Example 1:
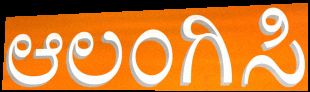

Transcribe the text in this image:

ಆಲಂಗಿಸಿ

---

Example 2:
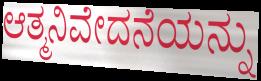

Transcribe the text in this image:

ಆತ್ಮನಿವೇದನೆಯನ್ನು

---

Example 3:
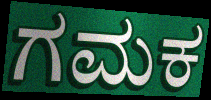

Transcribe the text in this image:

ಗಮಕ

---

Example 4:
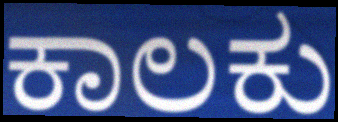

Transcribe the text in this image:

ಕಾಲಕು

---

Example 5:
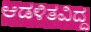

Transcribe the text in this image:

ಆಡಳಿತವಿದ್ದ